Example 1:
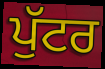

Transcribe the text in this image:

ਪੁੱਟਰ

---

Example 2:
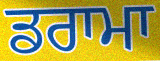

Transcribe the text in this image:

ਡਰਾਮਾ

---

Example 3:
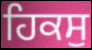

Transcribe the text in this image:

ਹਿਕਸੁ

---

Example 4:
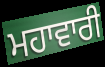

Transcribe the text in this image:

ਮਹਾਵਾਰੀ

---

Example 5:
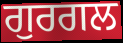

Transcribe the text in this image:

ਗੁਰਗਲ